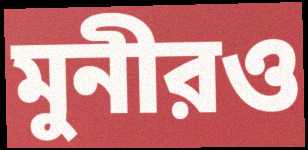
মুনীরও